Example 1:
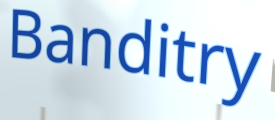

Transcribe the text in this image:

Banditry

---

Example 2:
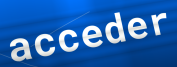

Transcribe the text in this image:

acceder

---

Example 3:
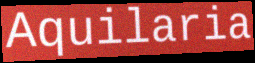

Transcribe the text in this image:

Aquilaria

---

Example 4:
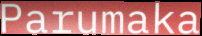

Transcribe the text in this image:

Parumaka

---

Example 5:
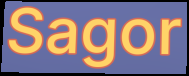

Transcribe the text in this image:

Sagor